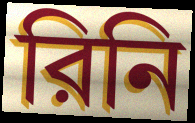
রিনি